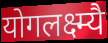
योगलक्ष्म्यै